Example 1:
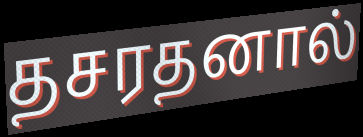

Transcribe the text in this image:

தசரதனால்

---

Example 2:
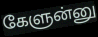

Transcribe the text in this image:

கேளுன்னு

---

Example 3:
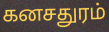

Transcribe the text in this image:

கனசதுரம்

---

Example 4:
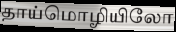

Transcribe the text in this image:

தாய்மொழியிலோ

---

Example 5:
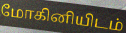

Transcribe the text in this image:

மோகினியிடம்